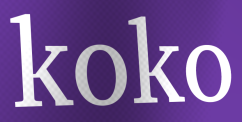
koko